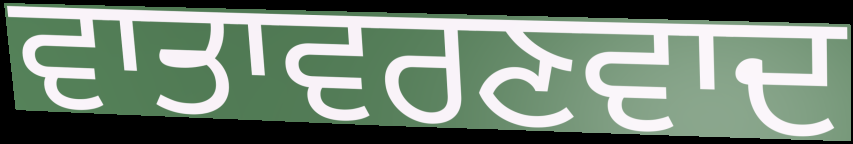
ਵਾਤਾਵਰਣਵਾਦ